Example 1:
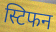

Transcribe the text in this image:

स्टिफन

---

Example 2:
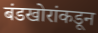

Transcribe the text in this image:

बंडखोरांकडून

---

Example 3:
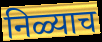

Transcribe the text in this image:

निळ्याच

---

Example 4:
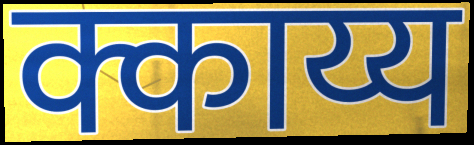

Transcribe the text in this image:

क्काय्य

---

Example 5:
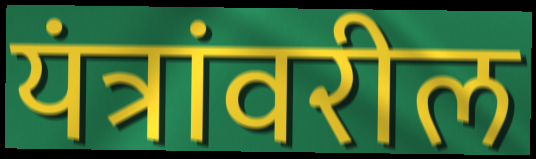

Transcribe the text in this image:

यंत्रांवरील